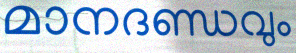
മാനദണ്ഡവും